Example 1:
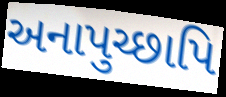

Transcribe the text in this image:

અનાપુચ્છાપિ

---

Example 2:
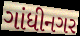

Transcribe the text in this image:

ગાંધીનગર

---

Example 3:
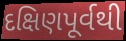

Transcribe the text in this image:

દક્ષિણપૂર્વથી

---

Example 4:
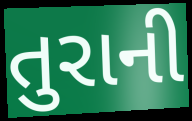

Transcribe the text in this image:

તુરાની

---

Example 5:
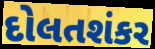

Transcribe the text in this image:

દોલતશંકર